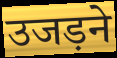
उजड़ने